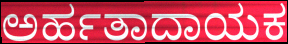
ಅರ್ಹತಾದಾಯಕ